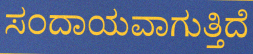
ಸಂದಾಯವಾಗುತ್ತಿದೆ